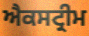
ਐਕਸਟ੍ਰੀਮ